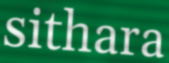
sithara